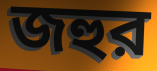
জহুর